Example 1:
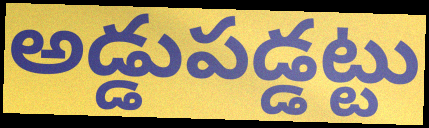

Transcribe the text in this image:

అడ్డుపడ్డట్టు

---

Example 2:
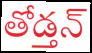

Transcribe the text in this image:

తోడ్తన్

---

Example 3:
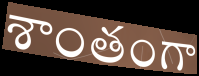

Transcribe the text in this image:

శాంతంగా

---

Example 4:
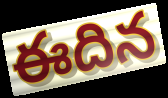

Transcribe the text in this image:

ఈదిన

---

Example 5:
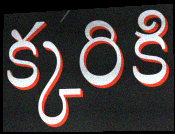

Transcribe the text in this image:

క్కరికి